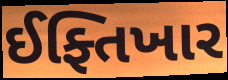
ઈફ્તિખાર